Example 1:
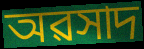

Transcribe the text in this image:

অৱসাদ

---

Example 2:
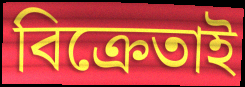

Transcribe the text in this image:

বিক্ৰেতাই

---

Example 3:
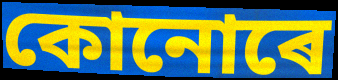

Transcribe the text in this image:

কোনোৰে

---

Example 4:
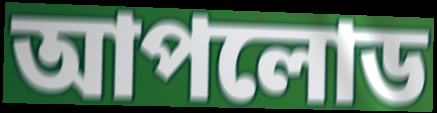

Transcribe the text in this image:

আপলোড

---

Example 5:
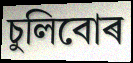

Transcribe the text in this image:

চুলিবোৰ